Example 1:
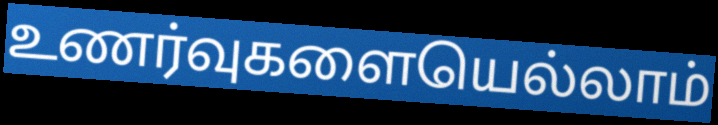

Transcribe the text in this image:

உணர்வுகளையெல்லாம்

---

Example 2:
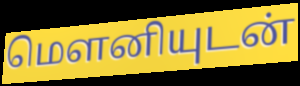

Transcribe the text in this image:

மௌனியுடன்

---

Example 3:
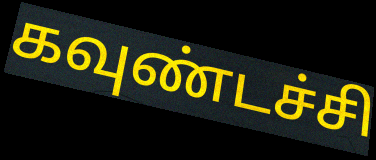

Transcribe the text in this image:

கவுண்டச்சி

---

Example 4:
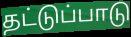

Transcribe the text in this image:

தட்டுப்பாடு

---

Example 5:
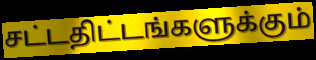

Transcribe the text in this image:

சட்டதிட்டங்களுக்கும்